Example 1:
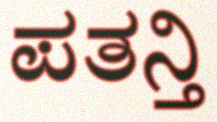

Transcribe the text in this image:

ಪತನ್ತಿ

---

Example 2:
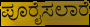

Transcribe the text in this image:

ಪೂರೈಸಲಾರೆ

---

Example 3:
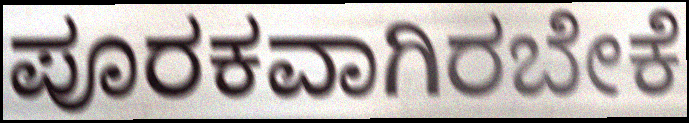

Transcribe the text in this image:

ಪೂರಕವಾಗಿರಬೇಕೆ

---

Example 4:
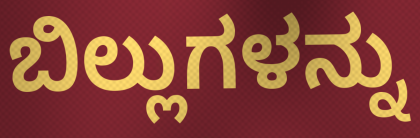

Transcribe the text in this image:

ಬಿಲ್ಲುಗಳನ್ನು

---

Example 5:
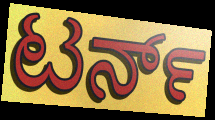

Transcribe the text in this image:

ಟರ್ನ್